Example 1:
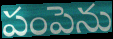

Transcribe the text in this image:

పంపెను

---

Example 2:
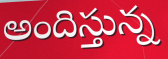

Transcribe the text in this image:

అందిస్తున్న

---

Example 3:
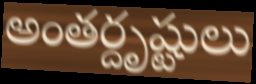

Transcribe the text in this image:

అంతర్దృష్టులు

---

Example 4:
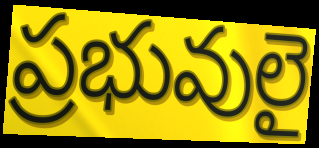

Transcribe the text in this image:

ప్రభువులై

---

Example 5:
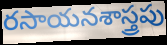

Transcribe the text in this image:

రసాయనశాస్త్రపు